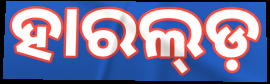
ହାରଲ୍ଡ଼